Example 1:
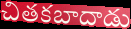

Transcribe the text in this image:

చితకబాదాడు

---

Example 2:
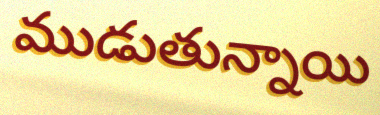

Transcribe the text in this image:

ముడుతున్నాయి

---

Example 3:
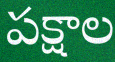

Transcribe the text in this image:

పక్షాల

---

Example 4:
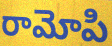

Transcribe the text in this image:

రామోపి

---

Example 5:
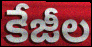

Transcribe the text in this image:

కేజీల